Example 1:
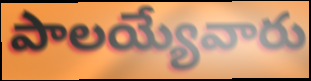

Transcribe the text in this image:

పాలయ్యేవారు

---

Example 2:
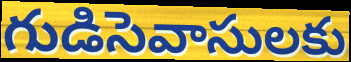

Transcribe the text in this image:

గుడిసెవాసులకు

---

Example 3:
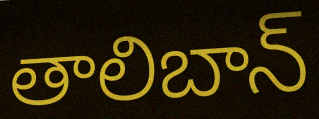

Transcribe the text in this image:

తాలిబాన్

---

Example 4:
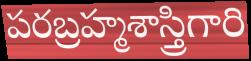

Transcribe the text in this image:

పరబ్రహ్మశాస్త్రిగారి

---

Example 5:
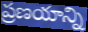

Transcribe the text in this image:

ప్రణయాన్ని